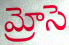
మ్రోసె